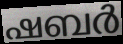
ഷബർ